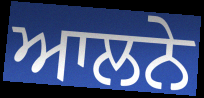
ਆਲਨੇ